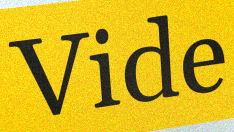
Vide